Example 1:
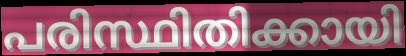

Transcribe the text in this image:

പരിസ്ഥിതിക്കായി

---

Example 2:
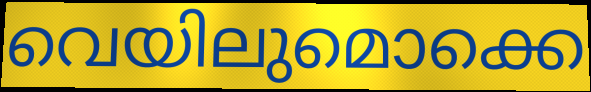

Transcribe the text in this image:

വെയിലുമൊക്കെ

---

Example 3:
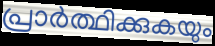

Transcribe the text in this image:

പ്രാർത്ഥിക്കുകയും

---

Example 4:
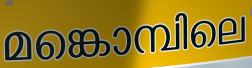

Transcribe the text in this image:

മങ്കൊമ്പിലെ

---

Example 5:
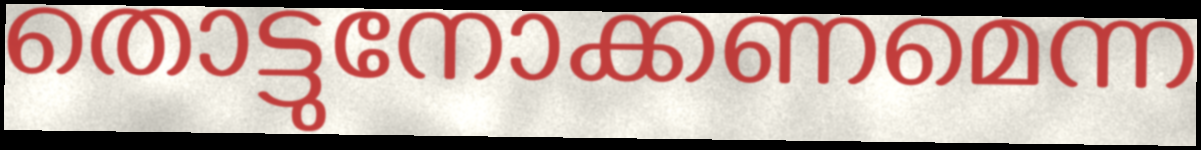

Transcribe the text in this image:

തൊട്ടുനോക്കണമെന്ന